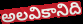
అలవికానిది